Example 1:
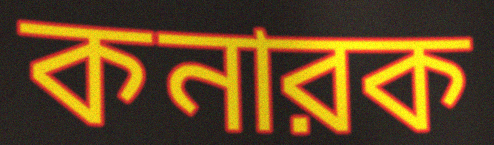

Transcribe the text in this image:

কনারক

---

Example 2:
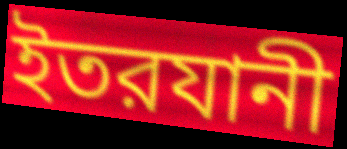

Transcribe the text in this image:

ইতরযানী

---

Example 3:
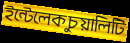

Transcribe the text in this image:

ইন্টেলেকচুয়ালিটি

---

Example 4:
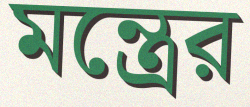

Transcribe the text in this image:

মন্ত্রের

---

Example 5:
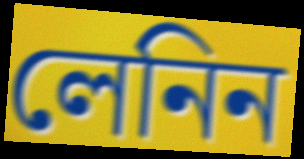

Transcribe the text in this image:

লেনিন